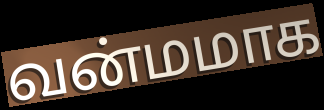
வன்மமாக